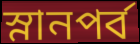
স্নানপর্ব